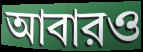
আবারও